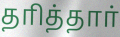
தரித்தார்